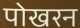
पोखरन